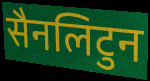
सैनलिटुन